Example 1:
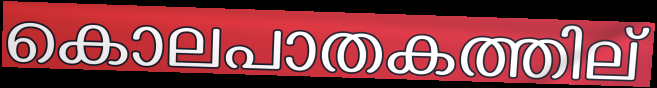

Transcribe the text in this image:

കൊലപാതകത്തില്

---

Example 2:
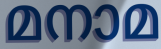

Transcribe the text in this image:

മനാമ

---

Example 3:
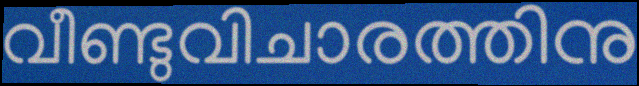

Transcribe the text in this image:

വീണ്ടുവിചാരത്തിനു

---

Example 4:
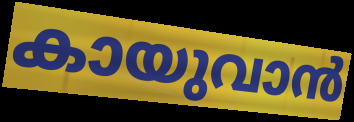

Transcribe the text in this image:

കായുവാൻ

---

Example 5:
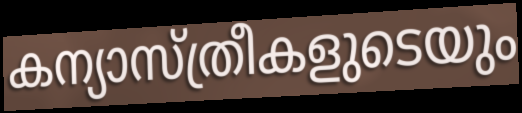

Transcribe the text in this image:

കന്യാസ്ത്രീകളുടെയും